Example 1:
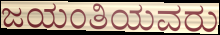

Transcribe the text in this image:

ಜಯಂತಿಯವರು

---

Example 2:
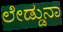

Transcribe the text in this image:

ಲೇಡ್ಡುನಾ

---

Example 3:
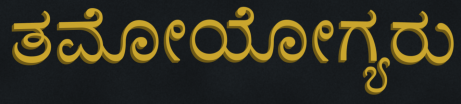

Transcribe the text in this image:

ತಮೋಯೋಗ್ಯರು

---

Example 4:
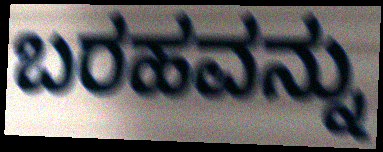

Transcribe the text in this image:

ಬರಹವನ್ನು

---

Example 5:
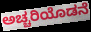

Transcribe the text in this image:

ಅಚ್ಚರಿಯೊಡನೆ